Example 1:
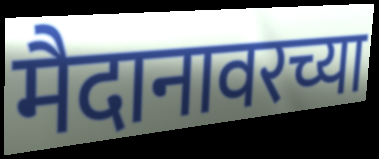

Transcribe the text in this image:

मैदानावरच्या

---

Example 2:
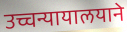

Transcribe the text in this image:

उच्चन्यायालयाने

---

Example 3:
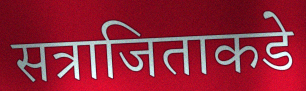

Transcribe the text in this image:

सत्राजिताकडे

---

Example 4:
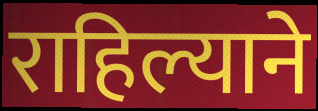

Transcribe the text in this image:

राहिल्याने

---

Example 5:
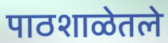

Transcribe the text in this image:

पाठशाळेतले